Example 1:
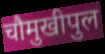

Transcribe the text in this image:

चौमुखीपुल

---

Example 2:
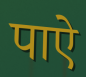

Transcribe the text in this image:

पाऐ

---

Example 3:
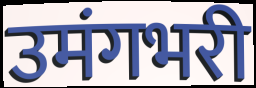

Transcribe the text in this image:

उमंगभरी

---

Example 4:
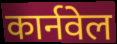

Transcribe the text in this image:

कार्नवेल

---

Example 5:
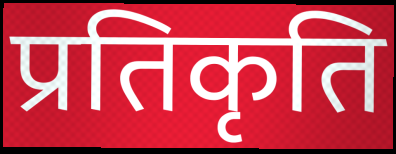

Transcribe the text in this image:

प्रतिकृति